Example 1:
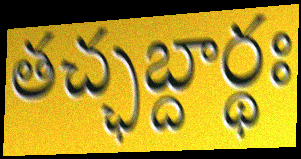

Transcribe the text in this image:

తచ్ఛబ్దార్థః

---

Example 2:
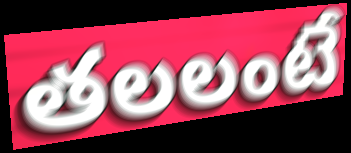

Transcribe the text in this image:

తలలంటే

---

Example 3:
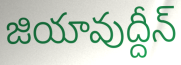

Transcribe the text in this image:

జియావుద్దీన్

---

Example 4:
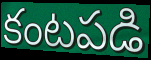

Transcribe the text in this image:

కంటపడి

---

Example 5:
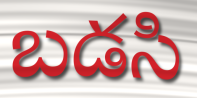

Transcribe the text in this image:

బడసి